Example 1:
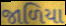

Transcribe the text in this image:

જાળિયા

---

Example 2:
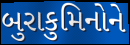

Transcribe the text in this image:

બુરાકુમિનોને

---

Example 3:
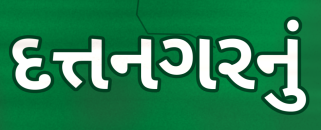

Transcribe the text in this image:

દત્તનગરનું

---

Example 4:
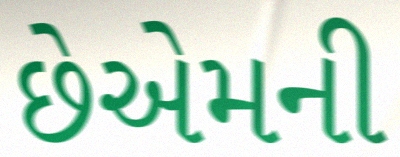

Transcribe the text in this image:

છેએમની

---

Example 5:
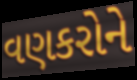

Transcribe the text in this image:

વણકરોને